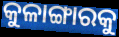
କୁଳାଙ୍ଗାରକୁ